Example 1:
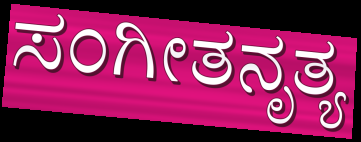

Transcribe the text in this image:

ಸಂಗೀತನೃತ್ಯ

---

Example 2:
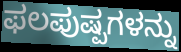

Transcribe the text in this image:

ಫಲಪುಷ್ಪಗಳನ್ನು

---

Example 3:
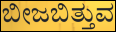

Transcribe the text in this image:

ಬೀಜಬಿತ್ತುವ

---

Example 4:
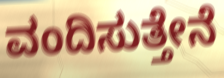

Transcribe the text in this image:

ವಂದಿಸುತ್ತೇನೆ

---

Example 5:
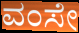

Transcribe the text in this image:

ವಂಸೇ